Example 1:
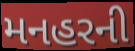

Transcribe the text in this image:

મનહરની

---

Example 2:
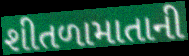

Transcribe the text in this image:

શીતળામાતાની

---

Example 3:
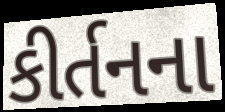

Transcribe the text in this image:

કીર્તનના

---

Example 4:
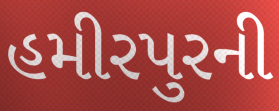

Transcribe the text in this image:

હમીરપુરની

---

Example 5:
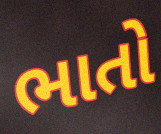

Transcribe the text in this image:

ભાતો